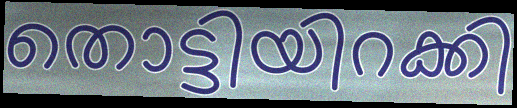
തൊട്ടിയിറക്കി